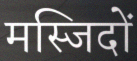
मस्जिदों